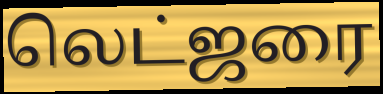
லெட்ஜரை